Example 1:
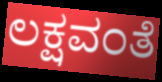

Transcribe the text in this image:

ಲಕ್ಷವಂತೆ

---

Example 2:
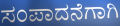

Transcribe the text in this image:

ಸಂಪಾದನೆಗಾಗಿ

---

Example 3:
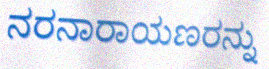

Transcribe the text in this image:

ನರನಾರಾಯಣರನ್ನು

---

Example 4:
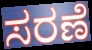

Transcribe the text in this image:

ಸರಣೆ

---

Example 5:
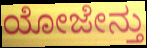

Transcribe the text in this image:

ಯೋಜೇನ್ತು